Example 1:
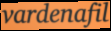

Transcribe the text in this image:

vardenafil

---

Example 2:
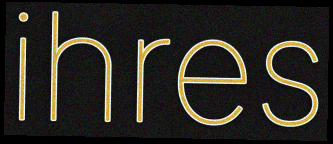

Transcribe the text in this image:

ihres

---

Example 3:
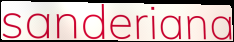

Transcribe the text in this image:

sanderiana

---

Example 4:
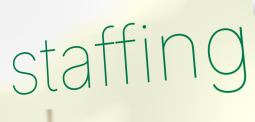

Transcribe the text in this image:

staffing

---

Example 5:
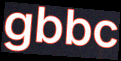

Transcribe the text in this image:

gbbc